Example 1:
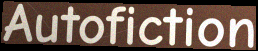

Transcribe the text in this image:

Autofiction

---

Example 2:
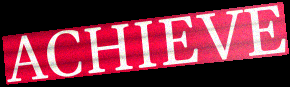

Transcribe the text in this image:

ACHIEVE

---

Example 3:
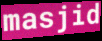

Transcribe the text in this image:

masjid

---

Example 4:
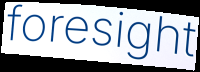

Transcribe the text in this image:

foresight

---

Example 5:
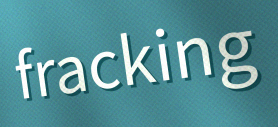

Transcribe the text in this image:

fracking